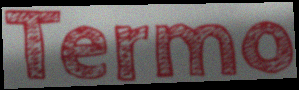
Termo